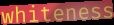
whiteness